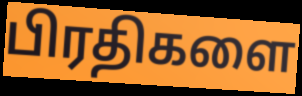
பிரதிகளை